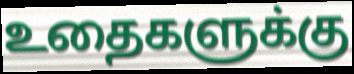
உதைகளுக்கு